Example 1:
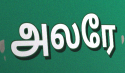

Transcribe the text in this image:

அலரே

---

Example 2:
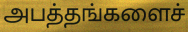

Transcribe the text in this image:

அபத்தங்களைச்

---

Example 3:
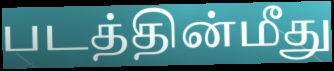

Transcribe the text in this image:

படத்தின்மீது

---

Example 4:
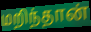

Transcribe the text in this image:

மறிந்தான்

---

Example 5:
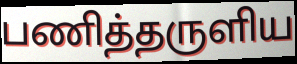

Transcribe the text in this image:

பணித்தருளிய